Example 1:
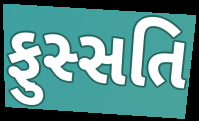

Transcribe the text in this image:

ફુસ્સતિ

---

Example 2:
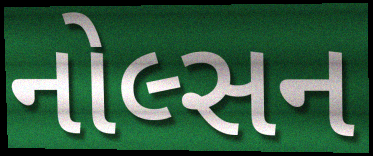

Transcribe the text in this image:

નોલ્સન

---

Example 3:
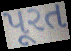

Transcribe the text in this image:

પૂરત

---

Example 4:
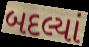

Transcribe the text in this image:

બદલ્યાં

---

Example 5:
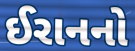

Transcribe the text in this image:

ઈરાનનો